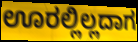
ಊರಲ್ಲಿಲ್ಲದಾಗ